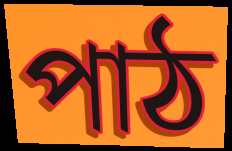
পাঠ